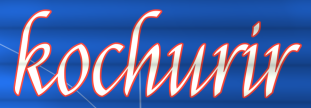
kochurir